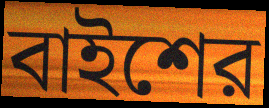
বাইশের